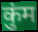
कुंम